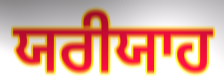
ਯਰੀਯਾਹ